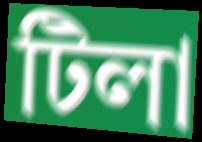
টিলা